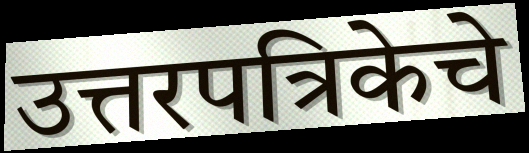
उत्तरपत्रिकेचे